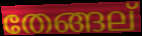
തേങ്ങല്